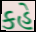
કહે